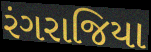
રંગરાજિયા